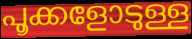
പൂക്കളോടുള്ള